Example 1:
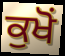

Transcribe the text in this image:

ਕੁਖੋਂ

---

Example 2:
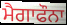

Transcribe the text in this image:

ਮੈਗਾਫੌਨਾ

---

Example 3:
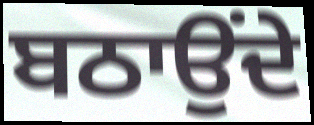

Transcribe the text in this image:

ਬਠਾਉਂਦੇ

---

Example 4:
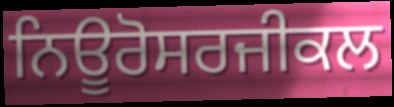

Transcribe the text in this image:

ਨਿਊਰੋਸਰਜੀਕਲ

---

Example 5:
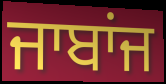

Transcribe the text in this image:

ਜਾਬਾਂਜ